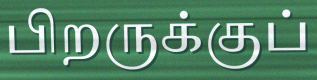
பிறருக்குப்